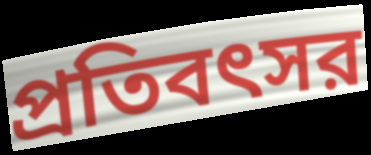
প্রতিবৎসর